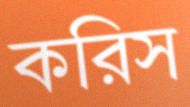
করিস